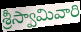
శ్రీస్వామివారి